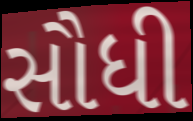
સૌધી